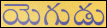
యెగుడు